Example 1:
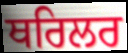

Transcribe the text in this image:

ਥਰਿਲਰ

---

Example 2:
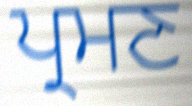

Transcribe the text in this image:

ਪ੍ਰਮਣ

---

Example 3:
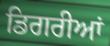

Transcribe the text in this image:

ਡਿਗਰੀਆਂ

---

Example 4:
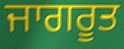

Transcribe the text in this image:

ਜਾਗਰੂਤ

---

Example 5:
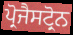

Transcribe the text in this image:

ਪ੍ਰੋਜੈਸਟ੍ਰੋਨ